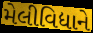
મેલીવિદ્યાને